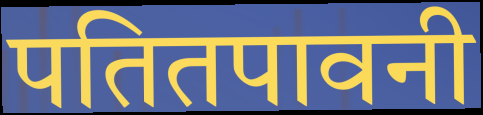
पतितपावनी